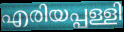
എരിയപ്പള്ളി